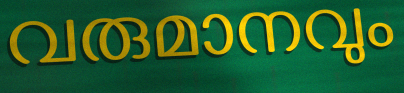
വരുമാനവും